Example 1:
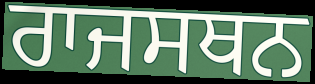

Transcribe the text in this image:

ਰਾਜਸਥਨ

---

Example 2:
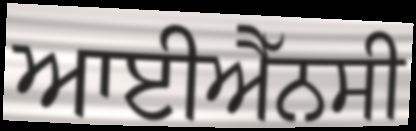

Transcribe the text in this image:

ਆਈਐੱਨਸੀ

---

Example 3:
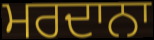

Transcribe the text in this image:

ਮਰਦਾਨਾ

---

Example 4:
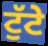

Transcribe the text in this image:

ਟੁੱਟੇ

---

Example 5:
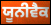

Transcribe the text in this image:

ਯੂਨੀਵੈਕ